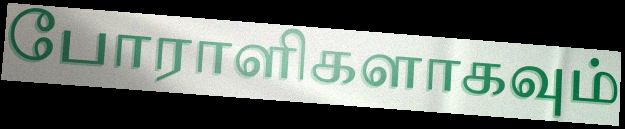
போராளிகளாகவும்